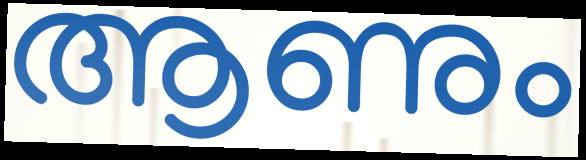
ആണും